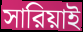
সারিয়াই